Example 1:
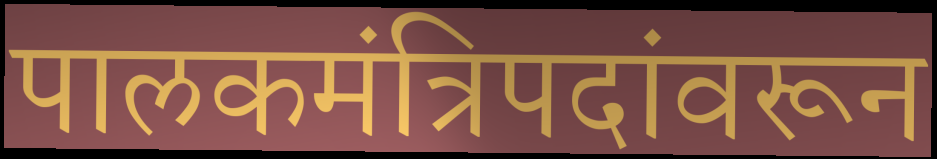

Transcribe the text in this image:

पालकमंत्रिपदांवरून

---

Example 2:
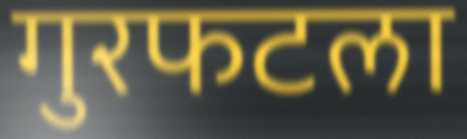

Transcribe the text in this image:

गुरफटला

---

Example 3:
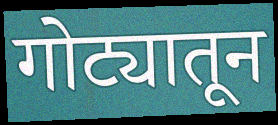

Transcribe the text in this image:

गोट्यातून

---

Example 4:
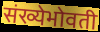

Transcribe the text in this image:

संख्येभोवती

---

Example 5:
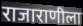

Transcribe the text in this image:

राजाराणीला